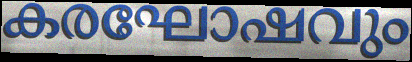
കരഘോഷവും